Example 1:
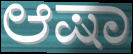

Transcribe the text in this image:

ಆಷಾ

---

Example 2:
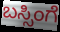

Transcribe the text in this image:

ಬಸ್ಸಿಂಗೆ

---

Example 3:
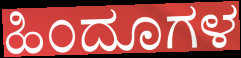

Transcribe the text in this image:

ಹಿಂದೂಗಳ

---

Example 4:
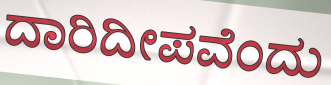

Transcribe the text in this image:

ದಾರಿದೀಪವೆಂದು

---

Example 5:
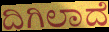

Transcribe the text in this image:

ದಿಗಿಲಾದೆ